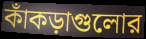
কাঁকড়াগুলোর